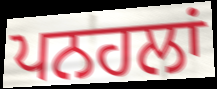
ਪਨਹਲਾਂ